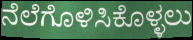
ನೆಲೆಗೊಳಿಸಿಕೊಳ್ಳಲು